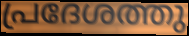
പ്രദേശത്തു